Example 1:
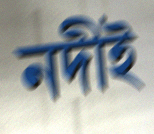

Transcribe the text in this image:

নদীই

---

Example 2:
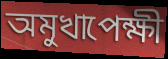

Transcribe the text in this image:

অমুখাপেক্ষী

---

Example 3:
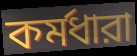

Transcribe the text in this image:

কর্মধারা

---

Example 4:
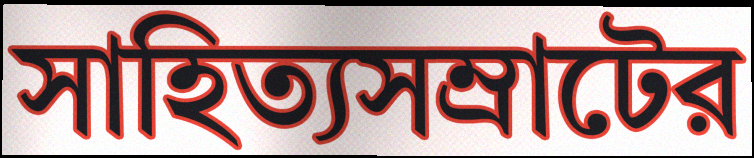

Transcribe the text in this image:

সাহিত্যসম্রাটের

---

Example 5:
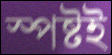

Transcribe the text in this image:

স্পষ্টই